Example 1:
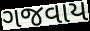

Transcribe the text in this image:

ગજવાય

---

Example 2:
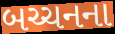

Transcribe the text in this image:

બચ્ચનના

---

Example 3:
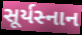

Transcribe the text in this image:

સૂર્યસ્નાન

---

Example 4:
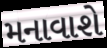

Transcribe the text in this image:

મનાવાશે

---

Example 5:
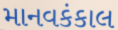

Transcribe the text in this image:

માનવકંકાલ